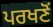
ਪਰਖਣੋਂ